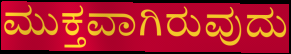
ಮುಕ್ತವಾಗಿರುವುದು